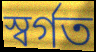
স্বৰ্গত